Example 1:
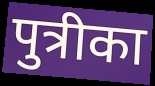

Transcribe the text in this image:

पुत्रीका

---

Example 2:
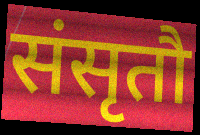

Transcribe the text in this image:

संसृतौ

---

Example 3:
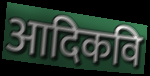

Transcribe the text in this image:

आदिकवि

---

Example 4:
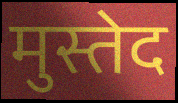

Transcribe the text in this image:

मुस्तेद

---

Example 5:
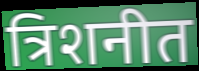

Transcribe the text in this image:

त्रिशनीत